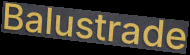
Balustrade